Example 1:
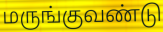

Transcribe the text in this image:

மருங்குவண்டு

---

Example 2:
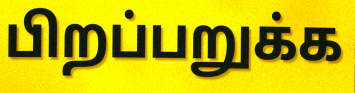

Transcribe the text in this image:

பிறப்பறுக்க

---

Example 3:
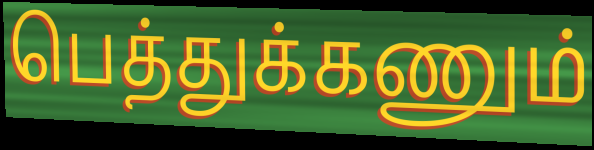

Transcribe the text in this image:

பெத்துக்கணும்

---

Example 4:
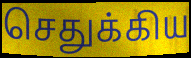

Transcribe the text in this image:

செதுக்கிய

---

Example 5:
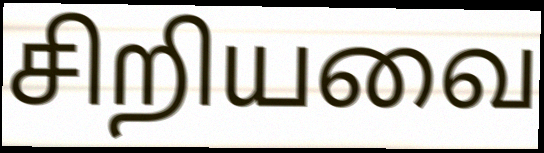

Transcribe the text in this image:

சிறியவை